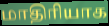
மாதிரியாக